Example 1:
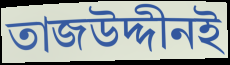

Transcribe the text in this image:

তাজউদ্দীনই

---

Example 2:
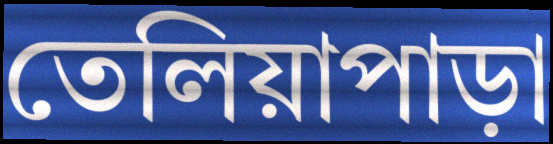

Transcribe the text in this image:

তেলিয়াপাড়া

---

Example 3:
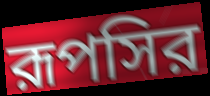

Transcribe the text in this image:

রূপসির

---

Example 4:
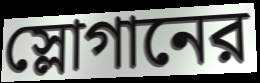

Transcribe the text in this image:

স্লোগানের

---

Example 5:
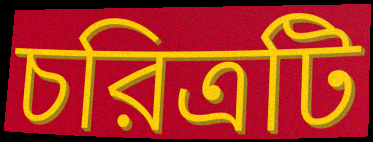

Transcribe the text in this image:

চরিত্রটি